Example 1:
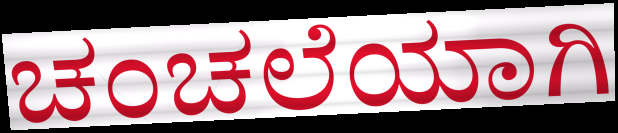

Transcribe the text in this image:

ಚಂಚಲೆಯಾಗಿ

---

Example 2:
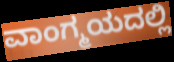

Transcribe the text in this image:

ವಾಂಗ್ಮಯದಲ್ಲಿ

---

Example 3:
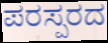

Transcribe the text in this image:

ಪರಸ್ಪರದ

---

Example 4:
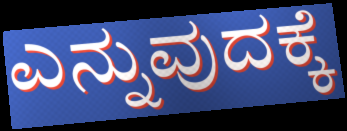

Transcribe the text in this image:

ಎನ್ನುವುದಕ್ಕೆ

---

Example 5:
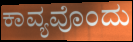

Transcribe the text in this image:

ಕಾವ್ಯವೊಂದು